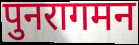
पुनरागमन